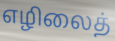
எழிலைத்